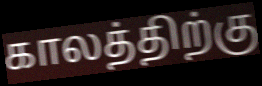
காலத்திற்கு